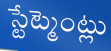
స్టేట్మెంట్లు